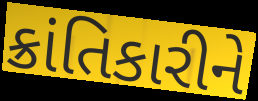
ક્રાંતિકારીને